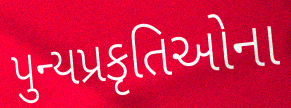
પુન્યપ્રકૃતિઓના